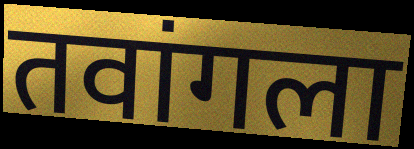
तवांगला